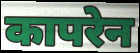
कापरेन